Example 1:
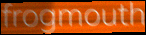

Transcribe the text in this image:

frogmouth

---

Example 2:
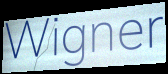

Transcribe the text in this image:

Wigner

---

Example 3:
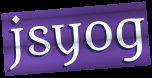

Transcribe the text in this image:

jsyog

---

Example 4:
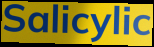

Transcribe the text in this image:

Salicylic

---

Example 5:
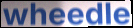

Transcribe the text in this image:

wheedle